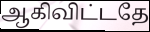
ஆகிவிட்டதே